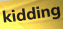
kidding